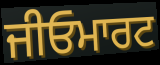
ਜੀਓਮਾਰਟ